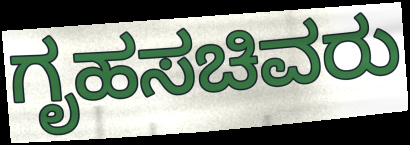
ಗೃಹಸಚಿವರು